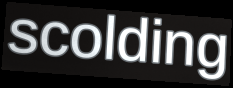
scolding